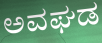
ಅವಘಡ